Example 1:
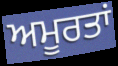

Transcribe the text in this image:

ਅਮੂਰਤਾਂ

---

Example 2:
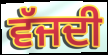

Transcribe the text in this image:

ਵੱਜਦੀ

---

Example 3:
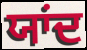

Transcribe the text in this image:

ਯਾਂਦ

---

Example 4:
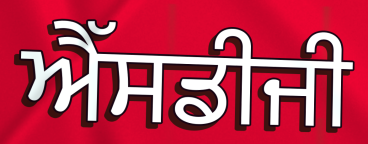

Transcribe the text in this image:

ਐੱਸਡੀਜੀ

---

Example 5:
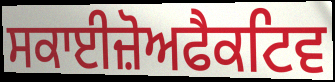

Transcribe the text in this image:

ਸਕਾਈਜ਼ੋਅਫੈਕਟਿਵ